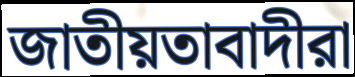
জাতীয়তাবাদীরা